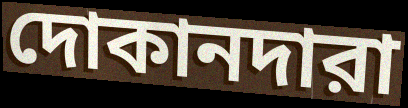
দোকানদারা